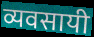
व्यवसायी